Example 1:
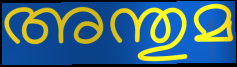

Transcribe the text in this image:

അന്തുമ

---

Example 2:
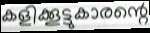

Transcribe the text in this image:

കളിക്കൂട്ടുകാരന്റെ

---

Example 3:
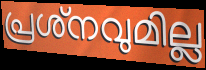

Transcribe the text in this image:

പ്രശ്‌നവുമില്ല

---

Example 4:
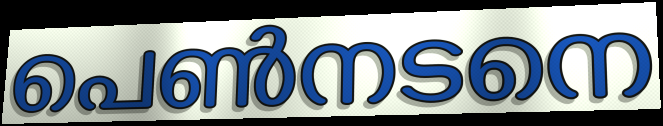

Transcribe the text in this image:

പെൺനടനെ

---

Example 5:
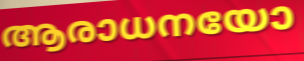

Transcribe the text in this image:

ആരാധനയോ